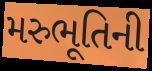
મરુભૂતિની